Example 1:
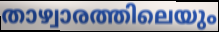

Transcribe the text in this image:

താഴ്വാരത്തിലെയും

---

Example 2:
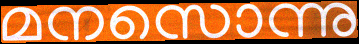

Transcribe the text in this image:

മനസൊന്നു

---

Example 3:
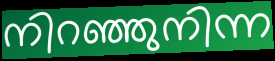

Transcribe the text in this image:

നിറഞ്ഞുനിന്ന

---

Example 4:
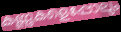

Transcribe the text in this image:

കണ്ണുകളെപ്പോലും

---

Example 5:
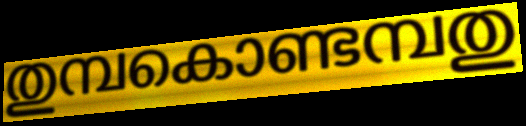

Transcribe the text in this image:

തുമ്പകൊണ്ടമ്പതു